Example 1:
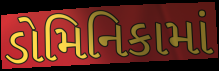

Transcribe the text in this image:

ડોમિનિકામાં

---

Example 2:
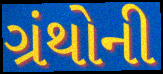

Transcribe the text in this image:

ગ્રંથોની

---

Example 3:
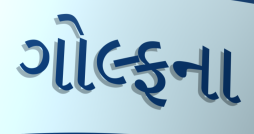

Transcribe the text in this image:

ગોલ્ફના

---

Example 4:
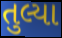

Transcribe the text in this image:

તુલ્યા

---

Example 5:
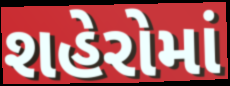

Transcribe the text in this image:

શહેરોમાં